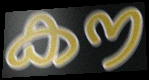
കൗ